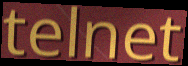
telnet